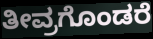
ತೀವ್ರಗೊಂಡರೆ